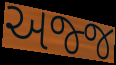
અજ્જ